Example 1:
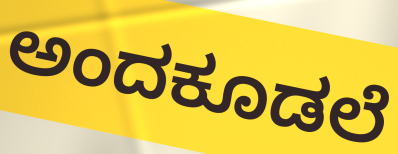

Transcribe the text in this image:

ಅಂದಕೂಡಲೆ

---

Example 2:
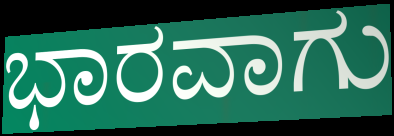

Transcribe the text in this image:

ಭಾರವಾಗು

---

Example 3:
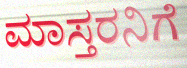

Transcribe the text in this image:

ಮಾಸ್ತರನಿಗೆ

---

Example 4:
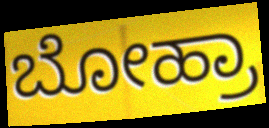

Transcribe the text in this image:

ಬೋಹ್ರಾ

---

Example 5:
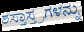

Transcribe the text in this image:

ಶಸ್ತಾಸ್ತ್ರಗಳನ್ನು